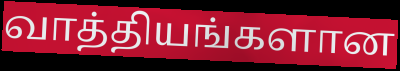
வாத்தியங்களான